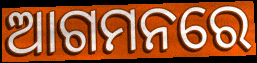
ଆଗମନରେ